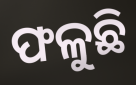
ଫଳୁଛି